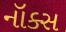
નૉક્સ